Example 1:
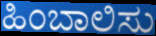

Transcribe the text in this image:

ಹಿಂಬಾಲಿಸು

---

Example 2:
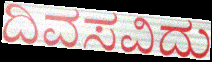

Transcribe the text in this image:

ದಿವಸವಿದು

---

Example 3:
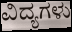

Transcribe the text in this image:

ವಿದ್ಯಗಳು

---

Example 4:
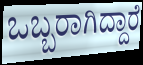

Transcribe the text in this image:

ಒಬ್ಬರಾಗಿದ್ದಾರೆ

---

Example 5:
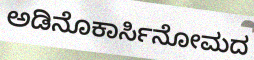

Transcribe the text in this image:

ಅಡಿನೊಕಾರ್ಸಿನೋಮದ